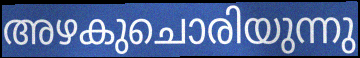
അഴകുചൊരിയുന്നു